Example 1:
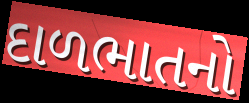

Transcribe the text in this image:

દાળભાતનો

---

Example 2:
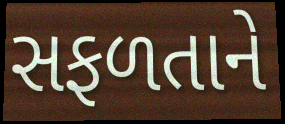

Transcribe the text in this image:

સફળતાને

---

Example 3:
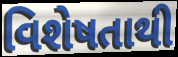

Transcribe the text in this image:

વિશેષતાથી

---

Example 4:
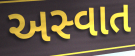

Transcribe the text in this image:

અસ્વાત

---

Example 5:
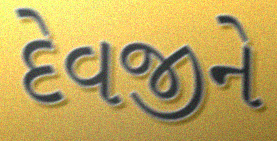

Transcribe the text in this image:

દેવજીને